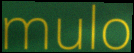
mulo